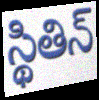
స్థితిన్